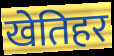
खेतिहर